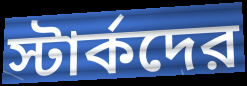
স্টার্কদের